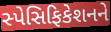
સ્પેસિફિકેશનને